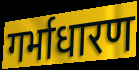
गर्भाधारण